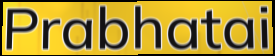
Prabhatai